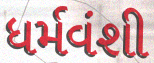
ધર્મવંશી